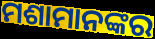
ମଶାମାନଙ୍କର